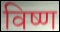
विष्ण